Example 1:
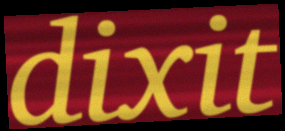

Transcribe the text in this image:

dixit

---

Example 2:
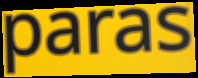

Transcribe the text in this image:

paras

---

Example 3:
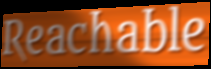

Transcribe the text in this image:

Reachable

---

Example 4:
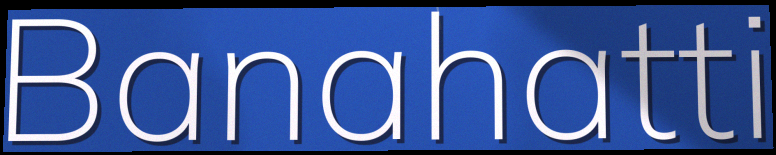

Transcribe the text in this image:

Banahatti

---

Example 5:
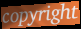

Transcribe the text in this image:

copyright